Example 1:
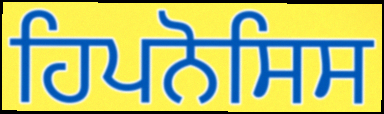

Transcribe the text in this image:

ਹਿਪਨੋਸਿਸ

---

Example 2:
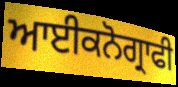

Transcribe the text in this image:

ਆਈਕਨੋਗ੍ਰਾਫੀ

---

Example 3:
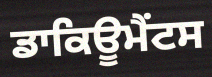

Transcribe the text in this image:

ਡਾਕਿਊਮੈਂਟਸ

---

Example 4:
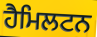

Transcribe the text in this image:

ਹੈਮਿਲਟਨ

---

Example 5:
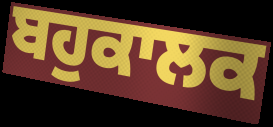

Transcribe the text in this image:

ਬਹੁਕਾਲਕ